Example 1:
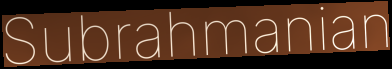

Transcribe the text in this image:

Subrahmanian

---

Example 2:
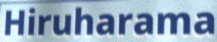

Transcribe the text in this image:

Hiruharama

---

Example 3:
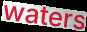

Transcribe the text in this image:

waters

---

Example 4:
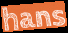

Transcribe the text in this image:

hans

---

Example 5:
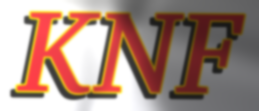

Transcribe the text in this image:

KNF